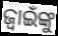
ଜ୍ବାଇଁଙ୍କୁ